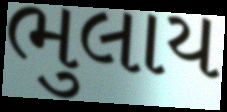
ભુલાય